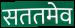
सततमेव